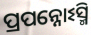
ପ୍ରପନ୍ନୋଽସ୍ମି